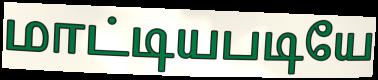
மாட்டியபடியே